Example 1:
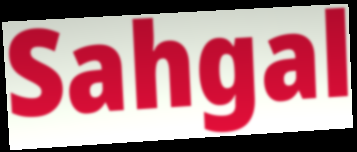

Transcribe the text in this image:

Sahgal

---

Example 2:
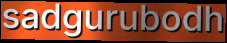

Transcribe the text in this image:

sadgurubodh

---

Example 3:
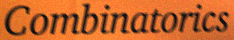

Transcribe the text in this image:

Combinatorics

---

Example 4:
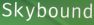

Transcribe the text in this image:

Skybound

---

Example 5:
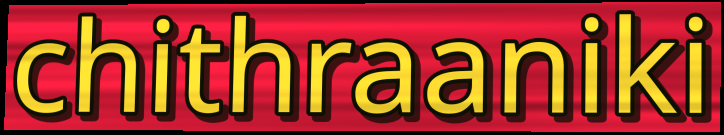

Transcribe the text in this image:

chithraaniki